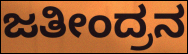
ಜತೀಂದ್ರನ